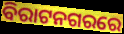
ବିରାଟନଗରରେ